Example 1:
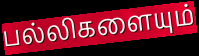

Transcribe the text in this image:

பல்லிகளையும்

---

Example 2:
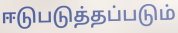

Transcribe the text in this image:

ஈடுபடுத்தப்படும்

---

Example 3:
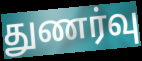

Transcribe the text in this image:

துணர்வு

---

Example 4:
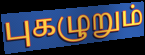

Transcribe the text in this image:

புகழுறும்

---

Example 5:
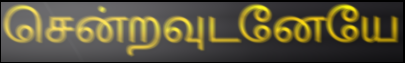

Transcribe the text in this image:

சென்றவுடனேயே